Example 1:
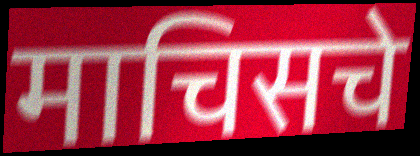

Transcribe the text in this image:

माचिसचे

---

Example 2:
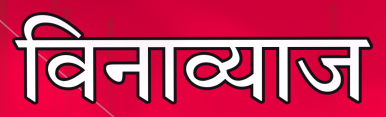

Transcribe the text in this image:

विनाव्याज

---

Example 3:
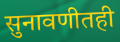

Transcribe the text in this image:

सुनावणीतही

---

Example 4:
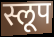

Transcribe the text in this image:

स्लूप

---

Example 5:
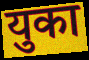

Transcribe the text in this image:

युका